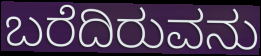
ಬರೆದಿರುವನು